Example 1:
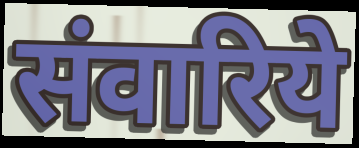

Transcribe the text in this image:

संवारिये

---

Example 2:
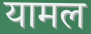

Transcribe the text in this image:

यामल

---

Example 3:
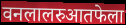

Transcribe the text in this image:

वनलालरुआतफेला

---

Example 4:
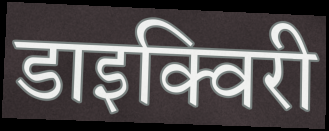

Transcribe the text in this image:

डाइक्विरी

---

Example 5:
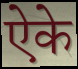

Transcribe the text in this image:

ऐके